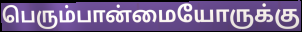
பெரும்பான்மையோருக்கு